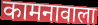
कामनावाला